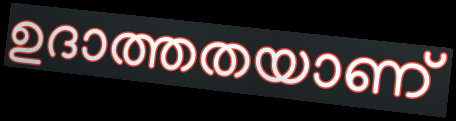
ഉദാത്തതയാണ്